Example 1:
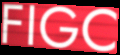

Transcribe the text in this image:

FIGC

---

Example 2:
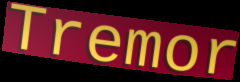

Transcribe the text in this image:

Tremor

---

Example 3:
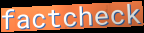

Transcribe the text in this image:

factcheck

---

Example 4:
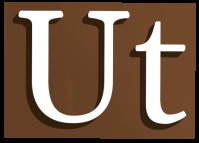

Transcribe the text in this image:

Ut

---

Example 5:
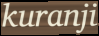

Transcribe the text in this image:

kuranji